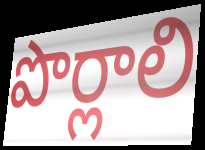
పొర్లాలి